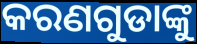
କରଣଗୁଡାଙ୍କୁ